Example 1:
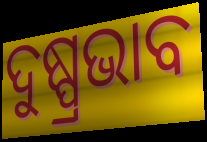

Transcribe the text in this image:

ଦୁଷ୍ପ୍ରଭାବ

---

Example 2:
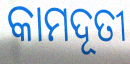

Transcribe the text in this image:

କାମଦୂତୀ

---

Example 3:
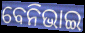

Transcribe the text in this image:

ବେନିଭାଇ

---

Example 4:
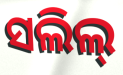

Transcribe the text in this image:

ସଲିଲ୍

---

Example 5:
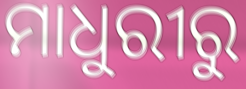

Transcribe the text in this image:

ମାଧୁରୀରୁ